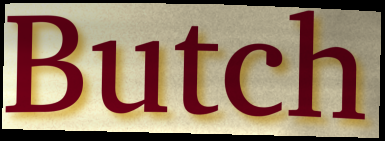
Butch